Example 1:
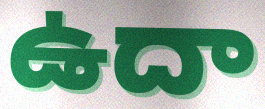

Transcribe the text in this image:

ఉదా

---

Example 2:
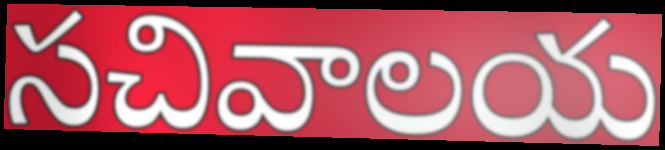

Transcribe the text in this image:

సచివాలయ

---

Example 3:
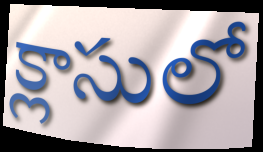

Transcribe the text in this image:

క్లాసులో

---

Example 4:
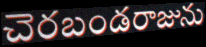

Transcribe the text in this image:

చెరబండరాజును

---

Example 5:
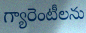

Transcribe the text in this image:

గ్యారెంటీలను